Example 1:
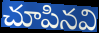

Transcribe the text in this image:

చూపినవి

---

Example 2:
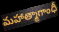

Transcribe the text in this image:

మహాత్మాగాంధీ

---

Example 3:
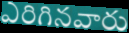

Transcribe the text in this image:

ఎరిగినవారు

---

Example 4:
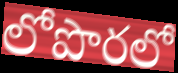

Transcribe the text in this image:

లోపొరలో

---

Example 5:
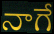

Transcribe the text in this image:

నాగే